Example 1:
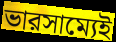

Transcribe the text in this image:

ভারসাম্যেই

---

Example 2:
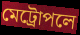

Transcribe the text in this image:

মেট্রোপলে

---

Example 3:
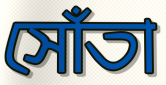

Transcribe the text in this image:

সোঁতা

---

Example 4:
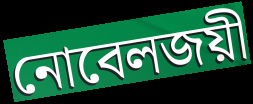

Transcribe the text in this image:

নোবেলজয়ী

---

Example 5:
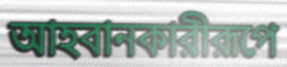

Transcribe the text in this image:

আহবানকারীরূপে